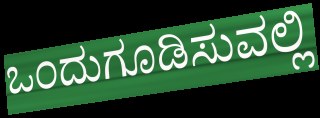
ಒಂದುಗೂಡಿಸುವಲ್ಲಿ